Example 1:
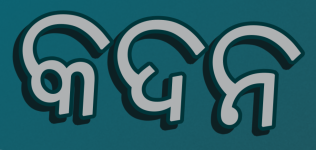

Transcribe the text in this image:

କଦନ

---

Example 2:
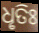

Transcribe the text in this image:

ଧୃତିଃ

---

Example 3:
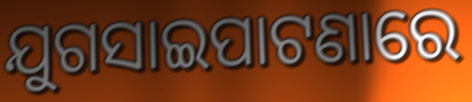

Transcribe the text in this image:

ଯୁଗସାଇପାଟଣାରେ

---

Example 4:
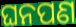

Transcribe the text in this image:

ଘନପଣ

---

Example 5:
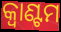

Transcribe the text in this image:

କ୍ୱାଣ୍ଟମ